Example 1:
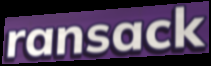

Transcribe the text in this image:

ransack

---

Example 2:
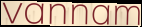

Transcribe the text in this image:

vannam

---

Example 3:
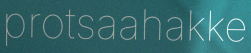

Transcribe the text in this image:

protsaahakke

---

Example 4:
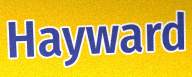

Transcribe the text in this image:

Hayward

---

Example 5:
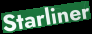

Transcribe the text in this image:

Starliner